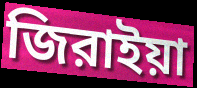
জিরাইয়া